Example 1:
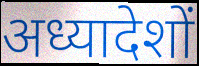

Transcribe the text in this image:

अध्यादेशों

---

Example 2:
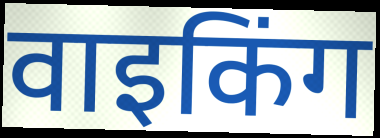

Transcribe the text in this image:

वाइकिंग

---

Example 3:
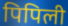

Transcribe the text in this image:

पिपिली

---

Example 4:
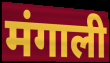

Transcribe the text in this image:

मंगाली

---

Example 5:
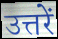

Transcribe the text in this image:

उत्तरें